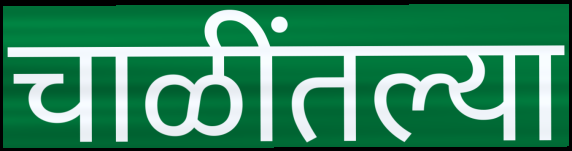
चाळींतल्या